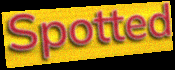
Spotted